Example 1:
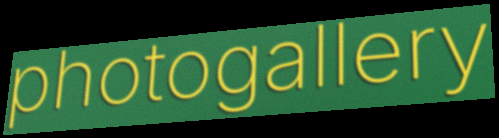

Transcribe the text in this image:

photogallery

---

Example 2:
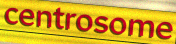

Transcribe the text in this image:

centrosome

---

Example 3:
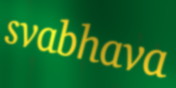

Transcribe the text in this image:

svabhava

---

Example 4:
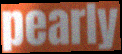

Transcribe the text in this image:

pearly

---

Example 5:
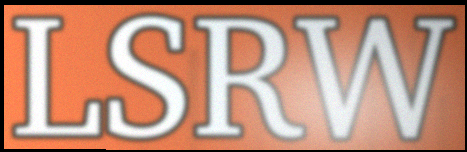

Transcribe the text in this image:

LSRW